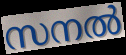
സനൽ